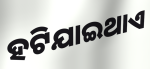
ହଟିଯାଇଥାଏ